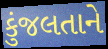
કુંજલતાને